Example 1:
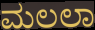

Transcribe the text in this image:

ಮಲಲಾ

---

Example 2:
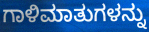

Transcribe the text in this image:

ಗಾಳಿಮಾತುಗಳನ್ನು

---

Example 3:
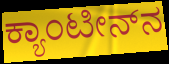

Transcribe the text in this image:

ಕ್ಯಾಂಟೀನ್‌ನ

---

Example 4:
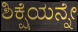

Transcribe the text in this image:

ಶಿಕ್ಷೆಯನ್ನೇ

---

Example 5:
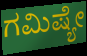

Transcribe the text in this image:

ಗಮಿಷ್ಯೇ